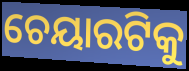
ଚେୟାରଟିକୁ